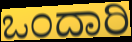
ಒಂದಾರಿ